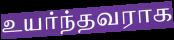
உயர்ந்தவராக